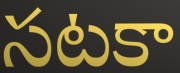
సటకా